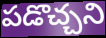
పడొచ్చని